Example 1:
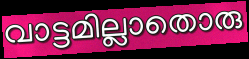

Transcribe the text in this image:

വാട്ടമില്ലാതൊരു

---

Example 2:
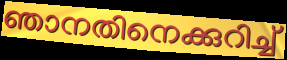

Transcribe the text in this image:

ഞാനതിനെക്കുറിച്ച്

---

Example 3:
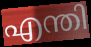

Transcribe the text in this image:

എന്തി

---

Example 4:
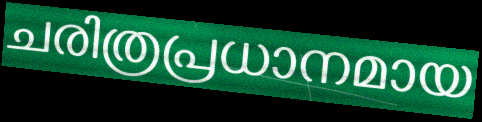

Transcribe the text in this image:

ചരിത്രപ്രധാനമായ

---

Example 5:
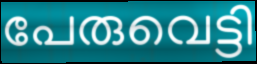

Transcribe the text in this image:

പേരുവെട്ടി